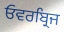
ਓਵਰਬ੍ਰਿਜ